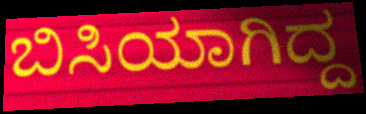
ಬಿಸಿಯಾಗಿದ್ದ